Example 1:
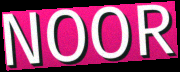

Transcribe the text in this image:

NOOR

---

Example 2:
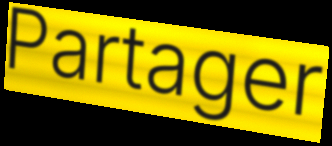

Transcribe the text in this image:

Partager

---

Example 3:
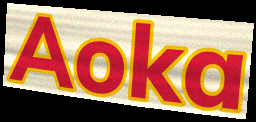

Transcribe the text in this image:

Aoka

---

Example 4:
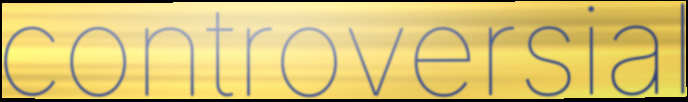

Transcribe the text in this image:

controversial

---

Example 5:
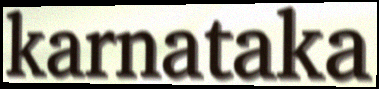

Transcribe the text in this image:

karnataka